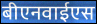
बीएनवाईएस